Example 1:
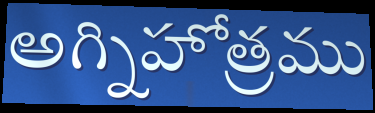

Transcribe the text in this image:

అగ్నిహోత్రము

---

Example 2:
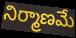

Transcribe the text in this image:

నిర్మాణమే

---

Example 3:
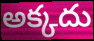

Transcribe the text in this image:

అక్కదు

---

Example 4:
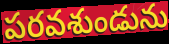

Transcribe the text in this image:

పరవశుండును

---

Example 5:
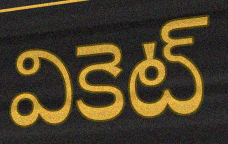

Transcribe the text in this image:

వికెట్